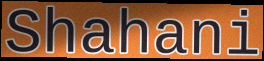
Shahani